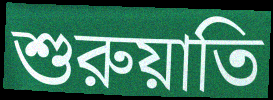
শুরুয়াতি